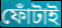
ফোঁটাই